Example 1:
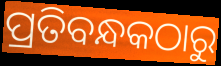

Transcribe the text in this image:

ପ୍ରତିବନ୍ଧକଠାରୁ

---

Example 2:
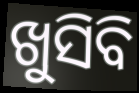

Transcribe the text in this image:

ଖୁସିବି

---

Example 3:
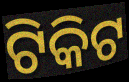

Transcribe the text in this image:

ଟିକିଟ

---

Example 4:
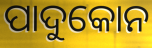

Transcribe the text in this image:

ପାଦୁକୋନ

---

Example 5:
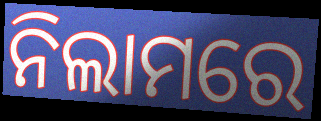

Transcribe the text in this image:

ନିଲାମରେ